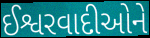
ઈશ્વરવાદીઓને